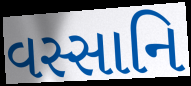
વસ્સાનિ